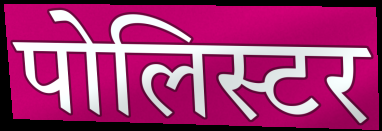
पोलिस्टर